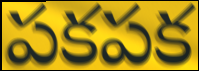
పకపక